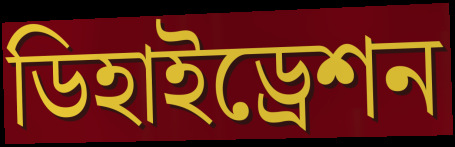
ডিহাইড্রেশন